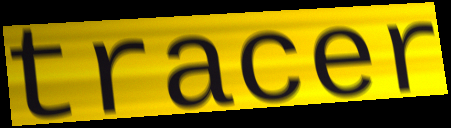
tracer